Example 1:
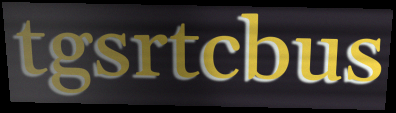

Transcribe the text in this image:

tgsrtcbus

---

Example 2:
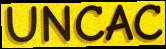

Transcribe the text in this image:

UNCAC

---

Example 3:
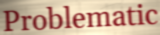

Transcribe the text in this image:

Problematic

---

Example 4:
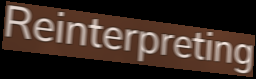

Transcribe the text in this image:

Reinterpreting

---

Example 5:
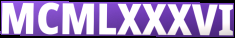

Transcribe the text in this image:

MCMLXXXVI